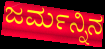
ಜರ್ಮನ್ನಿನ